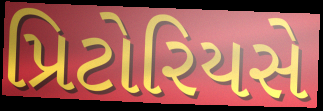
પ્રિટોરિયસે